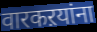
वारकऱयांना